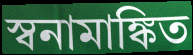
স্বনামাঙ্কিত